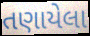
તણાયેલા